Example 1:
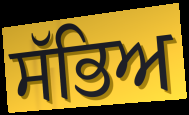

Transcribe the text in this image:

ਸੱਭਿਅ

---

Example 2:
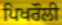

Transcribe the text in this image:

ਪਿਖਰੌਲੀ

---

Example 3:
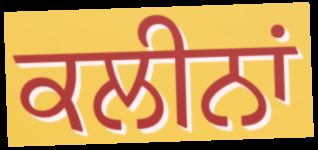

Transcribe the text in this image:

ਕਲੀਨਾਂ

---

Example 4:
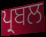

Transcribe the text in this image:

ਪ੍ਰਬਲ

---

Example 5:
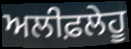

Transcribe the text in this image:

ਅਲੀਫ਼ਲੇਹੂ